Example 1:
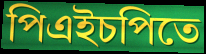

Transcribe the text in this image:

পিএইচপিতে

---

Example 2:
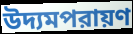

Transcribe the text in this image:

উদ্যমপরায়ণ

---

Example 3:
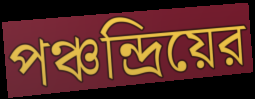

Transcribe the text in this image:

পঞ্চন্দ্রিয়ের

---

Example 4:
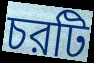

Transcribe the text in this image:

চরটি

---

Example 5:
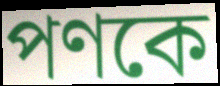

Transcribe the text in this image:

পণকে